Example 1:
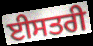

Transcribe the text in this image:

ਈਸਤਰੀ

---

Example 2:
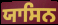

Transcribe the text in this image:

ਯਾਸਿਨ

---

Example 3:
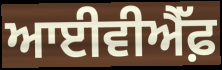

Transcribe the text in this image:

ਆਈਵੀਐੱਫ਼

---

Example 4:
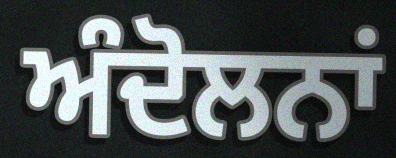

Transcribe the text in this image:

ਅੰਦੋਲਨਾਂ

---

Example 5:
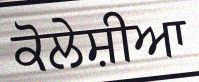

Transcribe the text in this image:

ਕੋਲੇਸ਼ੀਆ